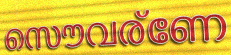
സൌവര്ണേ